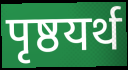
पृष्ठयर्थ